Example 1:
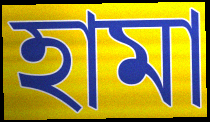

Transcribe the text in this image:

হামা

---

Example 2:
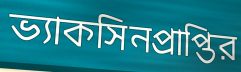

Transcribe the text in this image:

ভ্যাকসিনপ্রাপ্তির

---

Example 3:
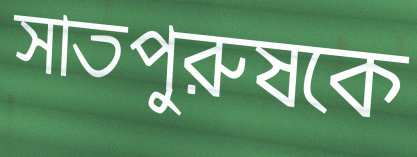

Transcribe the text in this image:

সাতপুরুষকে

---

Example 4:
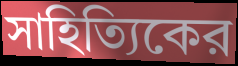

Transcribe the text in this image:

সাহিত্যিকের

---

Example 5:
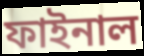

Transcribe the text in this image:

ফাইনাল